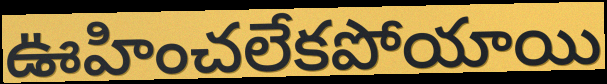
ఊహించలేకపోయాయి